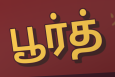
பூர்த்